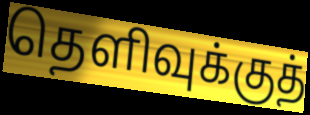
தெளிவுக்குத்